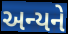
અન્યને